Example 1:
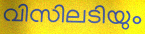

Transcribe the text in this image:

വിസിലടിയും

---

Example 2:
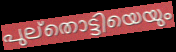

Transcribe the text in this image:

പുല്തൊട്ടിയെയും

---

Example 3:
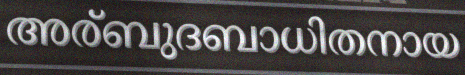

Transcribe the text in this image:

അര്ബുദബാധിതനായ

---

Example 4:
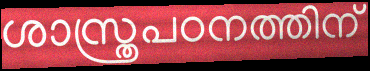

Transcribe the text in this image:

ശാസ്ത്രപഠനത്തിന്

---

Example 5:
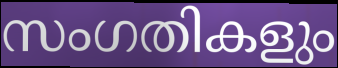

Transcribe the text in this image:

സംഗതികളും